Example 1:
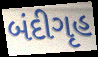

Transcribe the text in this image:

બંદીગૃહ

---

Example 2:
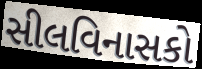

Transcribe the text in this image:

સીલવિનાસકો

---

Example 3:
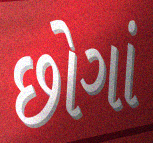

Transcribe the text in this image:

છોગાં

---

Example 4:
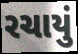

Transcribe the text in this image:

રચાયું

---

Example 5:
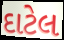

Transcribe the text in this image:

દાટેલ